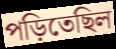
পড়িতেছিল